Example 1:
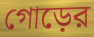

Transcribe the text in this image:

গোড়ের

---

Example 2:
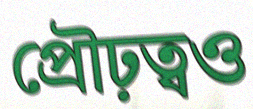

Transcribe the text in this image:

প্রৌঢ়ত্বও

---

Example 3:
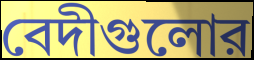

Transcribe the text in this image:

বেদীগুলোর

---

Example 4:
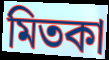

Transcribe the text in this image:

মিতকা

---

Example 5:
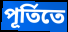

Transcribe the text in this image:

পূর্তিতে